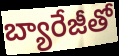
బ్యారేజీతో